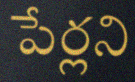
పేర్లని